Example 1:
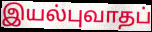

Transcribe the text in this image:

இயல்புவாதப்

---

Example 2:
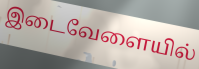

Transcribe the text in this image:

இடைவேளையில்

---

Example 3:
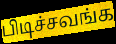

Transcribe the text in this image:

பிடிச்சவங்க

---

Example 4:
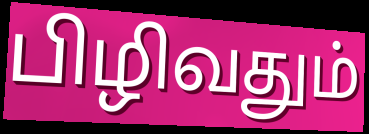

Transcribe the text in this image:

பிழிவதும்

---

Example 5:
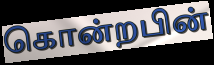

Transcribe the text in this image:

கொன்றபின்